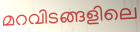
മറവിടങ്ങളിലെ